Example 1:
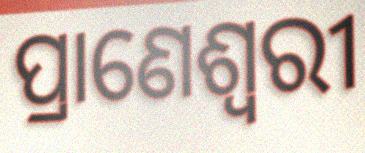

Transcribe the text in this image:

ପ୍ରାଣେଶ୍ୱରୀ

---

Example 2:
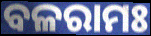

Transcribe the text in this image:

ବଳରାମଃ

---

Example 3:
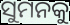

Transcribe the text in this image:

ସୁମନକୁ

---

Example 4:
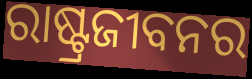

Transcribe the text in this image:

ରାଷ୍ଟ୍ରଜୀବନର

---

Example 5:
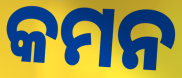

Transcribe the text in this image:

କମନ